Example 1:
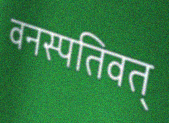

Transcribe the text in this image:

वनस्पतिवत्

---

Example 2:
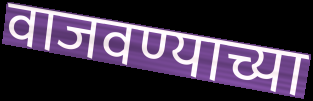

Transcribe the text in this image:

वाजवण्याच्या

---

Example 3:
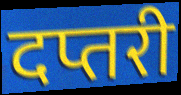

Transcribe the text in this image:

दप्तरी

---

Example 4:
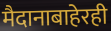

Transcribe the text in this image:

मैदानाबाहेरही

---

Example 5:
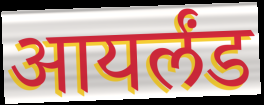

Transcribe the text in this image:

आयर्लंड